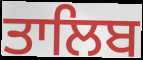
ਤਾਲਿਬ